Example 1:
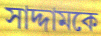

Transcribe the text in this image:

সাদ্দামকে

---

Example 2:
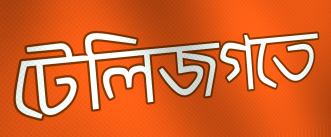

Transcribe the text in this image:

টেলিজগতে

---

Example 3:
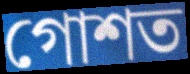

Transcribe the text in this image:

গোশত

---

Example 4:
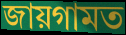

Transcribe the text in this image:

জায়গামত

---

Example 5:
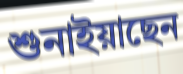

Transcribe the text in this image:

শুনাইয়াছেন